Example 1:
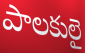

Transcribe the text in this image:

పాలకులై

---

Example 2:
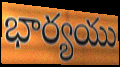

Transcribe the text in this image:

భార్యయు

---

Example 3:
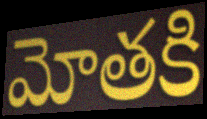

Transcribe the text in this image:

మోతకి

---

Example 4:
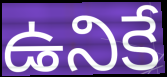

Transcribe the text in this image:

ఉనికే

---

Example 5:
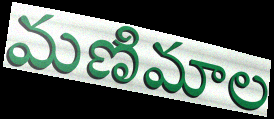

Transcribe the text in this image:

మణిమాల